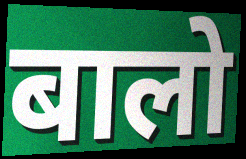
बालो